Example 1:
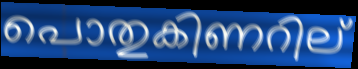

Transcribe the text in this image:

പൊതുകിണറില്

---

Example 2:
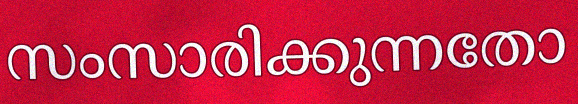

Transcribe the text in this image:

സംസാരിക്കുന്നതോ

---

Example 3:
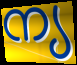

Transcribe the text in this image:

ന്യ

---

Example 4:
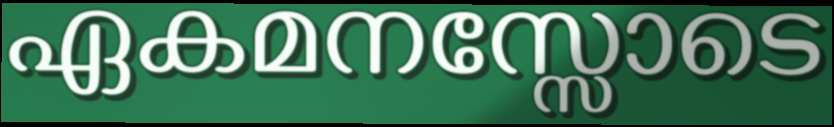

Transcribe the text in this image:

ഏകമനസ്സോടെ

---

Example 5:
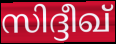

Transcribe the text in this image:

സിദ്ദീഖ്